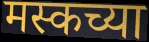
मस्कच्या